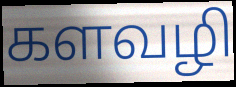
களவழி